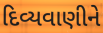
દિવ્યવાણીને